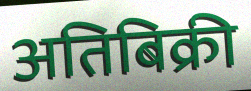
अतिबिक्री